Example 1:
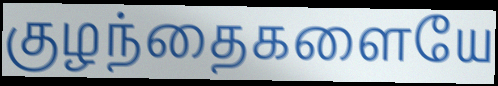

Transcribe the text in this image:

குழந்தைகளையே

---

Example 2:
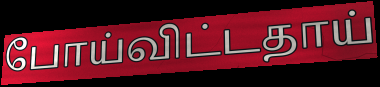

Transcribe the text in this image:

போய்விட்டதாய்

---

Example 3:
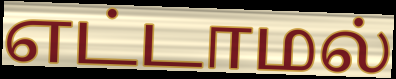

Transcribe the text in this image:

எட்டாமல்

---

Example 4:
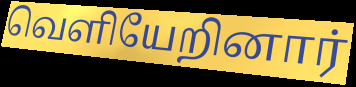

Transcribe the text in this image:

வெளியேறினார்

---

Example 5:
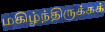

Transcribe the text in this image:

மகிழ்ந்திருக்கக்